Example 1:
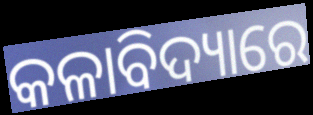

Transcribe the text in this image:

କଳାବିଦ୍ୟାରେ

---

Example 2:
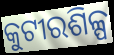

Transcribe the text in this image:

କୁଟୀରଶିଳ୍ପ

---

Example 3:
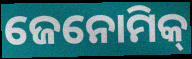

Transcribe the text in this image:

ଜେନୋମିକ୍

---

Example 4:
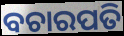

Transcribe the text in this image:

ବଚାରପତି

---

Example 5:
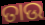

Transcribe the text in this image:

ତାଉ